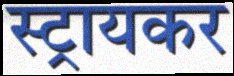
स्ट्रायकर